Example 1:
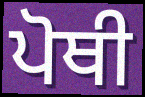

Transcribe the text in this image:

ਪੋਥੀ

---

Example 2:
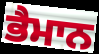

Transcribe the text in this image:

ਭੈਮਾਨ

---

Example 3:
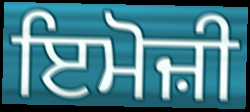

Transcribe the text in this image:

ਇਮੋਜ਼ੀ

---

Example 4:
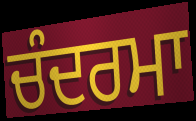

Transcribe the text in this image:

ਚੰਦਰਮਾ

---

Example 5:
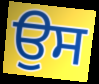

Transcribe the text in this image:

ਉਸ